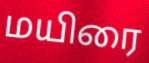
மயிரை